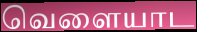
வெளையாட